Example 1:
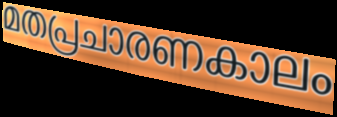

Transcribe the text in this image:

മതപ്രചാരണകാലം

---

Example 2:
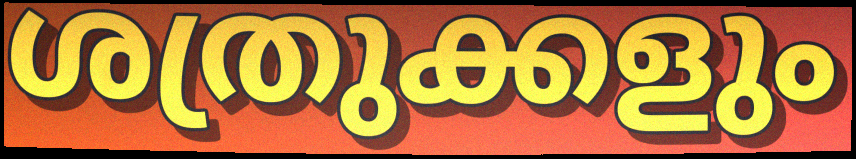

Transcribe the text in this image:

ശത്രുക്കളും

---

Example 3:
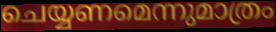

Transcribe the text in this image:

ചെയ്യണമെന്നുമാത്രം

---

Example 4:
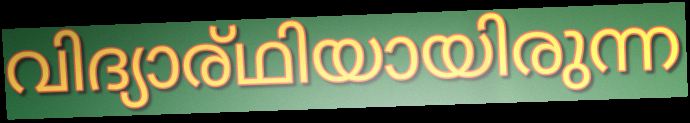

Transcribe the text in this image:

വിദ്യാര്ഥിയായിരുന്ന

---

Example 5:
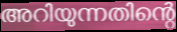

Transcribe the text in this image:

അറിയുന്നതിന്റെ